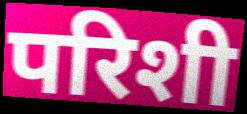
परिशी